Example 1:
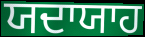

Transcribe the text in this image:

ਯਦਾਯਾਹ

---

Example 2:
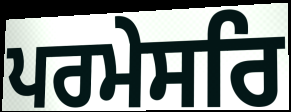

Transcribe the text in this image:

ਪਰਮੇਸਰਿ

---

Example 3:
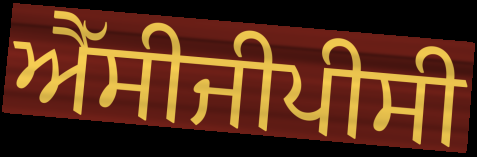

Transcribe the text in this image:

ਐੱਸੀਜੀਪੀਸੀ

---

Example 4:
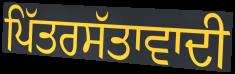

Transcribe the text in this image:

ਪਿੱਤਰਸੱਤਾਵਾਦੀ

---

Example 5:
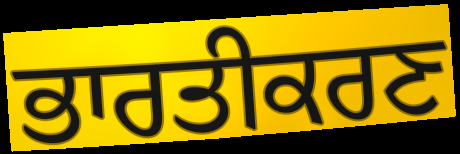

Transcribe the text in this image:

ਭਾਰਤੀਕਰਣ